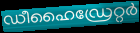
ഡീഹൈഡ്രേറ്റർ